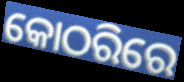
କୋଠରିରେ